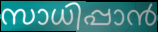
സാധിപ്പാൻ